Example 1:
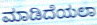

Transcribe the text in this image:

ಮಾಡಿದೆಯಲಾ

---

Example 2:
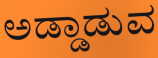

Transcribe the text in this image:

ಅಡ್ಡಾಡುವ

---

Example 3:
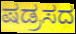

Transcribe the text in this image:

ಷಡ್ರಸದ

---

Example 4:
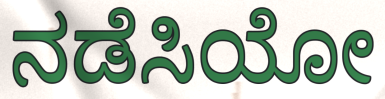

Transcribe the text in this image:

ನಡೆಸಿಯೋ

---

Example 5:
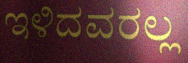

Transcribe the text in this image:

ಇಳಿದವರಲ್ಲ